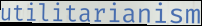
utilitarianism